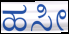
ಹಸೀ